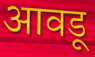
आवडू